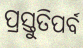
ପ୍ରସ୍ତୁତିପର୍ବ